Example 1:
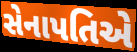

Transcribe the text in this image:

સેનાપતિએ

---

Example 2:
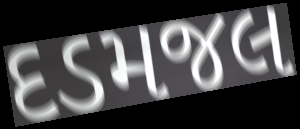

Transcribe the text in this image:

દડમજલ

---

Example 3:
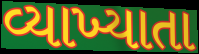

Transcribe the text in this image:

વ્યાખ્યાતા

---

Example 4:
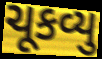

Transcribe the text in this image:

ચૂકવ્યુ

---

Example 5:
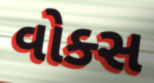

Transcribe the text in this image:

વોક્સ